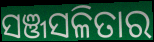
ସଞ୍ଜସଳିତାର